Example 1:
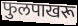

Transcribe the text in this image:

फुलपाखरू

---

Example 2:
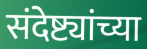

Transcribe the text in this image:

संदेष्ट्यांच्या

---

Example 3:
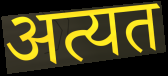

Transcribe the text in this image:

अत्यत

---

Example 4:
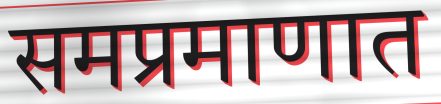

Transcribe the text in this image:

समप्रमाणात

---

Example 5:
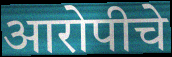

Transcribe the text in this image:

आरोपीचे